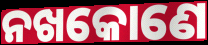
ନଖକୋଣେ